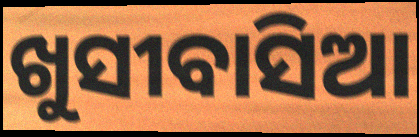
ଖୁସୀବାସିଆ